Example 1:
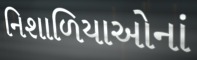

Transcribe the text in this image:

નિશાળિયાઓનાં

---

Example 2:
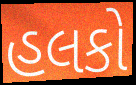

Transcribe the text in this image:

હલકો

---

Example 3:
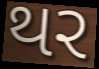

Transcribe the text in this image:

થર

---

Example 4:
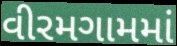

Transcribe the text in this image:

વીરમગામમાં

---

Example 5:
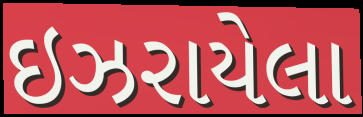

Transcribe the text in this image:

ઇઝરાયેલા